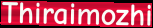
Thiraimozhi